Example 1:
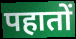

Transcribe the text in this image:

पहातों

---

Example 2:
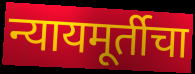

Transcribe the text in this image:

न्यायमूर्तीचा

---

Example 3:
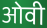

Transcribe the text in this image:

ओवी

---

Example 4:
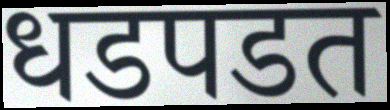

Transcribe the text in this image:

धडपडत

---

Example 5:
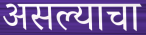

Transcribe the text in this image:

असल्याचा